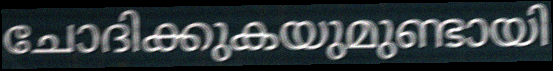
ചോദിക്കുകയുമുണ്ടായി